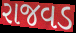
રાજવડ